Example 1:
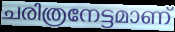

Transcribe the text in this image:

ചരിത്രനേട്ടമാണ്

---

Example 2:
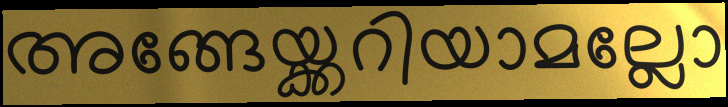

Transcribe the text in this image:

അങ്ങേയ്ക്കറിയാമല്ലോ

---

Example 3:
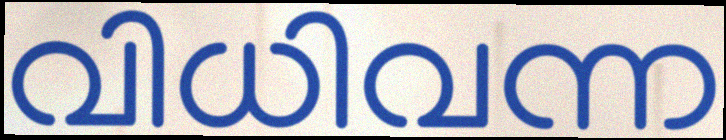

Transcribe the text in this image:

വിധിവന്ന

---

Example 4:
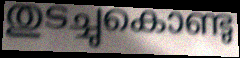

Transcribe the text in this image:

തുടച്ചുകൊണ്ടു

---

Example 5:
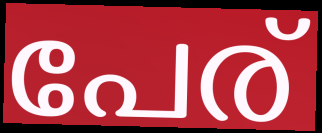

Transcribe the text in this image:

പേര്